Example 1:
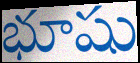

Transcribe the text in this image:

భూషు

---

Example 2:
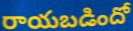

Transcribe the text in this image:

రాయబడిందో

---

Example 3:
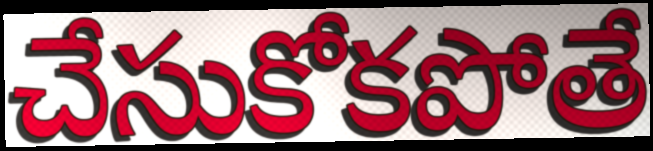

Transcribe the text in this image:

చేసుకోకపోతే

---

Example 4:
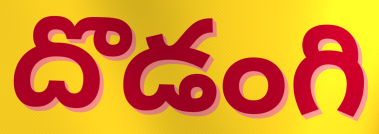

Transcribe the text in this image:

దొడంగి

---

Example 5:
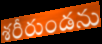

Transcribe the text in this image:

శరీరుండను